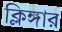
ক্লিঙ্গার